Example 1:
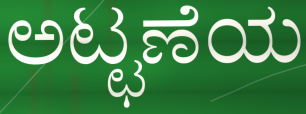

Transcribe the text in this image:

ಅಟ್ಟಣೆಯ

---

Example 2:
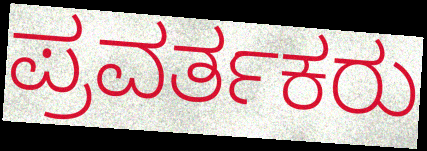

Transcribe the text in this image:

ಪ್ರವರ್ತಕರು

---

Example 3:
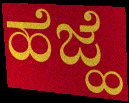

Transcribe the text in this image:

ಹೆಜ್ಹೆ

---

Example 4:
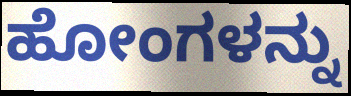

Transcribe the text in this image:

ಹೋಂಗಳನ್ನು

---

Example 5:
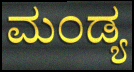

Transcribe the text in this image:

ಮಂಡ್ಯ